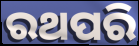
ରଥପରି